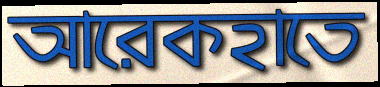
আরেকহাতে